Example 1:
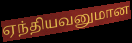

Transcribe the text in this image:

ஏந்தியவனுமான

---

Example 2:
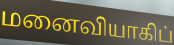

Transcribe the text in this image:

மனைவியாகிப்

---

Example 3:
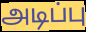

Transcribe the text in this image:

அடிப்பு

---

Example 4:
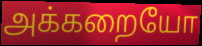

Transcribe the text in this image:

அக்கறையோ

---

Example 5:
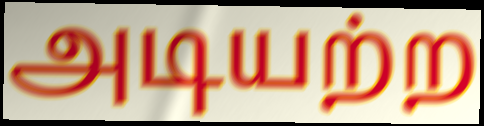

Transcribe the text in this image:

அடியற்ற